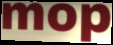
mop